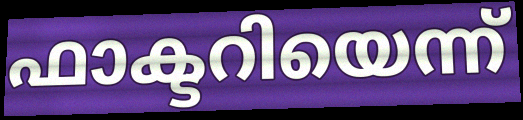
ഫാക്ടറിയെന്ന്